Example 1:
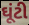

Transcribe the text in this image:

ઘૂંટી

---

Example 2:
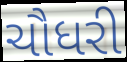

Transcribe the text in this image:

ચૌધરી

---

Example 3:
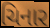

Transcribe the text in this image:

ચિનાર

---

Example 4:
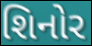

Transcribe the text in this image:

શિનોર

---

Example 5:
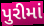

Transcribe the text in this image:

પુરીમાં